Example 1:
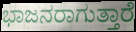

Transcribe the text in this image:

ಭಾಜನರಾಗುತ್ತಾರೆ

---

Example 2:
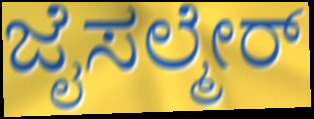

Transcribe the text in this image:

ಜೈಸಲ್ಮೇರ್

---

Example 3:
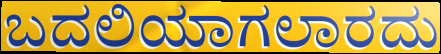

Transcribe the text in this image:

ಬದಲಿಯಾಗಲಾರದು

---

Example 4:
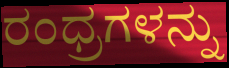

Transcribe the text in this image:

ರಂಧ್ರಗಳನ್ನು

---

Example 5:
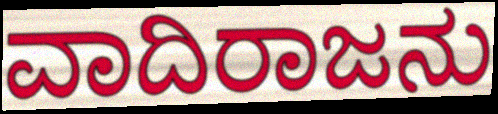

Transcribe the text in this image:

ವಾದಿರಾಜನು